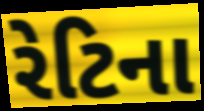
રેટિના